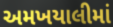
અમખયાલીમાં